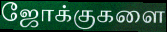
ஜோக்குகளை